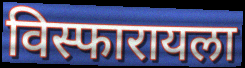
विस्फारायला